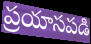
ప్రయాసపడి